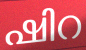
ഷിറ